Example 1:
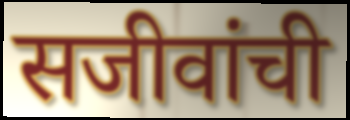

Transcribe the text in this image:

सजीवांची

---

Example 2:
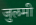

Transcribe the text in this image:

जुलमी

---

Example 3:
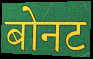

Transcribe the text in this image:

बोनट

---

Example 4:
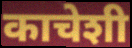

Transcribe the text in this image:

काचेशी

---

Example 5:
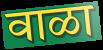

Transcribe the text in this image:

वाळा